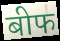
बीफ